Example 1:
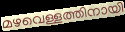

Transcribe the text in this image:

മഴവെള്ളത്തിനായി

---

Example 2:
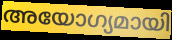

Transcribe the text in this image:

അയോഗ്യമായി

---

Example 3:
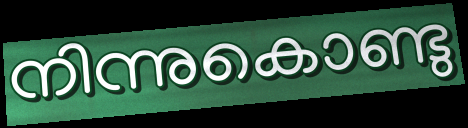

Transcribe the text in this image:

നിന്നുകൊണ്ടു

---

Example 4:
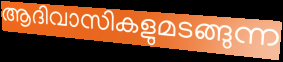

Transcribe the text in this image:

ആദിവാസികളുമടങ്ങുന്ന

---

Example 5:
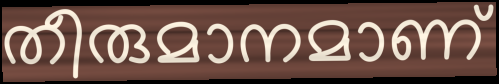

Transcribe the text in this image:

തീരുമാനമാണ്